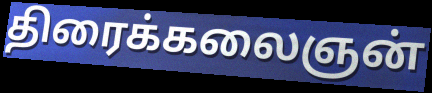
திரைக்கலைஞன்